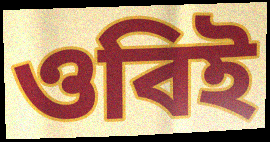
ওবিই